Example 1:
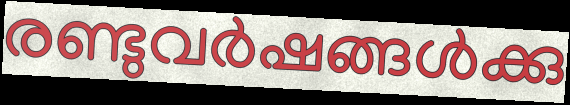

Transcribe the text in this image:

രണ്ടുവർഷങ്ങൾക്കു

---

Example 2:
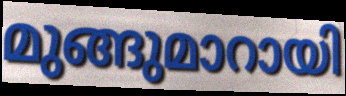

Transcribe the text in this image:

മുങ്ങുമാറായി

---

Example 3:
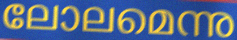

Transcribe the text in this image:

ലോലമെന്നു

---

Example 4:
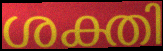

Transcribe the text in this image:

ശക്തി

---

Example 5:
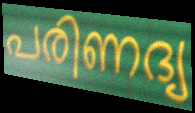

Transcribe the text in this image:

പരിണദ്യ